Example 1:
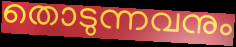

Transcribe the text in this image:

തൊടുന്നവനും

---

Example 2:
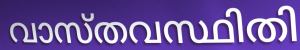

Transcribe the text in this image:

വാസ്തവസ്ഥിതി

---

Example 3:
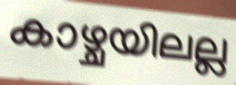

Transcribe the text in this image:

കാഴ്ചയിലല്ല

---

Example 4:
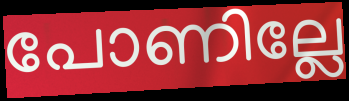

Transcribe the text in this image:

പോണില്ലേ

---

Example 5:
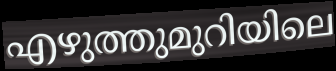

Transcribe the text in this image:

എഴുത്തുമുറിയിലെ